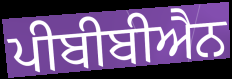
ਪੀਬੀਬੀਐਨ